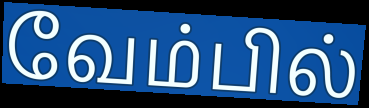
வேம்பில்